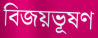
বিজয়ভূষণ